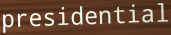
presidential